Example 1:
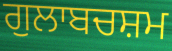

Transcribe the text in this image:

ਗੁਲਾਬਚਸ਼ਮ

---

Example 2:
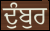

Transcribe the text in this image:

ਦੁੰਬੁਰ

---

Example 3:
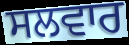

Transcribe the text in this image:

ਸਲਵਾਰ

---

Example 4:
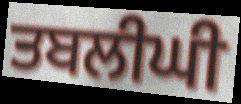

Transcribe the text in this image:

ਤਬਲੀਘੀ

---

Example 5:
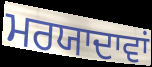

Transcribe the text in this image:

ਮਰਯਾਦਾਵਾਂ